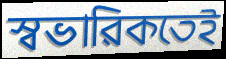
স্বভাৱিকতেই